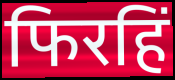
फिरहिं